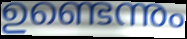
ഉണ്ടെന്നും